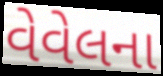
વેવેલના